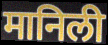
मानिली